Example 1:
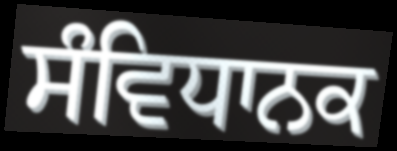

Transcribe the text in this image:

ਸੰਵਿਧਾਨਕ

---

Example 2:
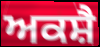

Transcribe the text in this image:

ਅਕਸ਼ੈ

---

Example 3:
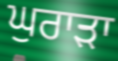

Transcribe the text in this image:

ਘੁਰਾੜਾ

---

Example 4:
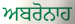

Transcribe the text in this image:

ਅਬਰੋਨਾਹ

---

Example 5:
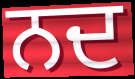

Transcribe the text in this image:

ਨਦ